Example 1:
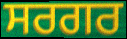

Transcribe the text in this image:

ਸਰਗਰ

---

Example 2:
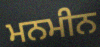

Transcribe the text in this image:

ਮਨਮੀਨ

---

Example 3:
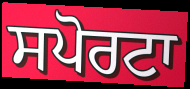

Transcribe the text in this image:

ਸਪੋਰਟਾ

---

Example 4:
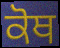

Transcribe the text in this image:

ਕੋਥ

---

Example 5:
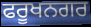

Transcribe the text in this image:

ਫਰੂਖਨਗਰ